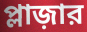
প্লাজ়ার